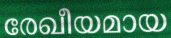
രേഖീയമായ